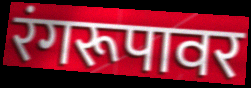
रंगरूपावर